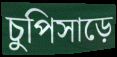
চুপিসাড়ে